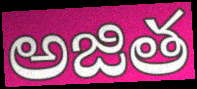
అజిత